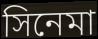
সিনেমা